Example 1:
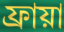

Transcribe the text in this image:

ফ্রায়া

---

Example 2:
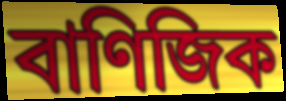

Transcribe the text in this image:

বাণিজিক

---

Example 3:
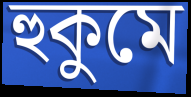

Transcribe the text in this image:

হুকুমে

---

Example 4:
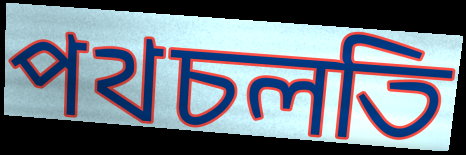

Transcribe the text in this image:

পথচলতি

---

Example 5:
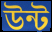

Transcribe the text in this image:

উন্ট